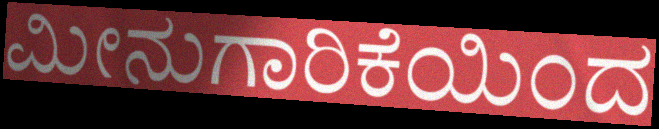
ಮೀನುಗಾರಿಕೆಯಿಂದ